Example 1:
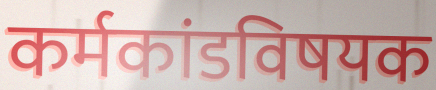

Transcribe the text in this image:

कर्मकांडविषयक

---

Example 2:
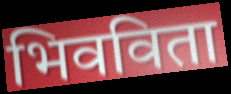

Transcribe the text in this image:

भिवविता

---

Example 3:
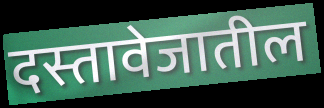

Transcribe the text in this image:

दस्तावेजातील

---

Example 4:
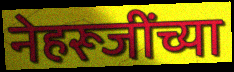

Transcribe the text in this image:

नेहरूजींच्या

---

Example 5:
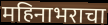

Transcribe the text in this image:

महिनाभराचा